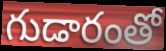
గుడారంతో